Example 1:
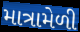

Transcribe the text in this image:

માત્રામેળી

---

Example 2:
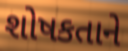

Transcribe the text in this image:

શોષકતાને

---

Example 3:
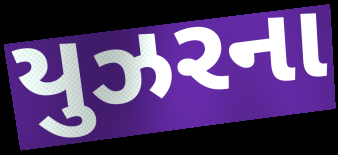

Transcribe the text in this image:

યુઝરના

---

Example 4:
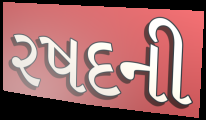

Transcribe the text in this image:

રષદની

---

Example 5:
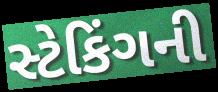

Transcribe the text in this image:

સ્ટેકિંગની